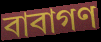
বাবাগণ